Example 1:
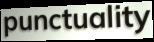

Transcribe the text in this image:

punctuality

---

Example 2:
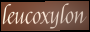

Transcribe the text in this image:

leucoxylon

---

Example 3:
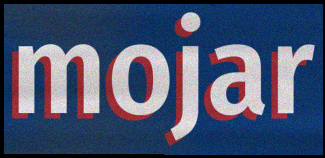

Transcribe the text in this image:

mojar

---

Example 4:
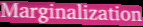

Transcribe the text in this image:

Marginalization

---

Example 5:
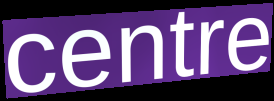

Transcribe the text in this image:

centre